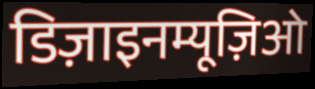
डिज़ाइनम्यूज़िओ